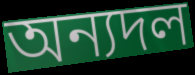
অন্যদল